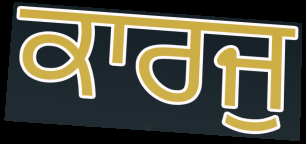
ਕਾਰਜੁ